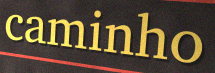
caminho